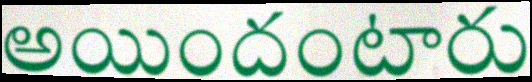
అయిందంటారు